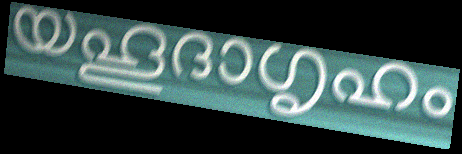
യഹൂദാഗൃഹം